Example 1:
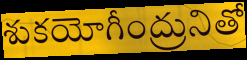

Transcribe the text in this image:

శుకయోగీంద్రునితో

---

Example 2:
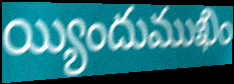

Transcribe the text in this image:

య్యిందుముఖిం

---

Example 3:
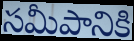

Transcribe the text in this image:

సమీపానికి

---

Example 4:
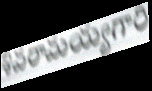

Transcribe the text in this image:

శివరామయ్యగారి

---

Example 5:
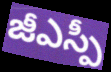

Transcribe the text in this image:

జీఎస్పీ